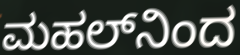
ಮಹಲ್‌ನಿಂದ